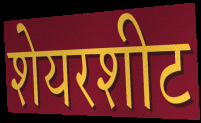
शेयरशीट